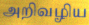
அறிவழிய